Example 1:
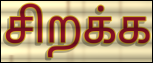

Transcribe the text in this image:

சிறக்க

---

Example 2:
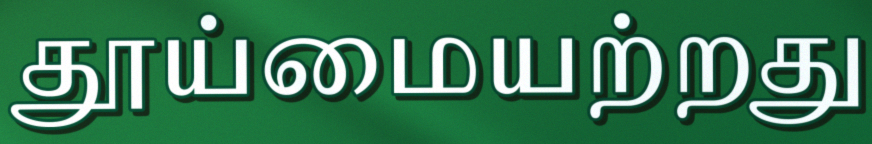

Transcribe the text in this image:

தூய்மையற்றது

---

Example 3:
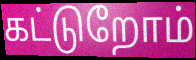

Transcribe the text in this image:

கட்டுறோம்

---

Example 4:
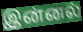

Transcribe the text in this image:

இன்னல்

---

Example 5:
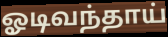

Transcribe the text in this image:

ஓடிவந்தாய்